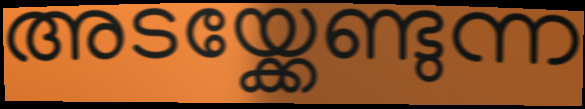
അടയ്ക്കേണ്ടുന്ന